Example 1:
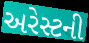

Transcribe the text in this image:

અરેસ્ટની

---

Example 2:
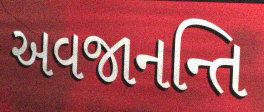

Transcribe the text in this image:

અવજાનન્તિ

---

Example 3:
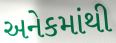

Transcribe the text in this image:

અનેકમાંથી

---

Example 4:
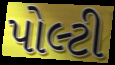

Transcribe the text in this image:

પોલ્ટી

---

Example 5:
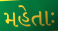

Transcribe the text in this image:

મહેતાઃ